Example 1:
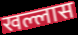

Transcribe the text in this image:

खल्लास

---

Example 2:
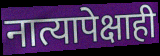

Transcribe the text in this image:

नात्यापेक्षाही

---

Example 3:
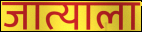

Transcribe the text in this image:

जात्याला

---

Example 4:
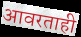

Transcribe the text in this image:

आवरताही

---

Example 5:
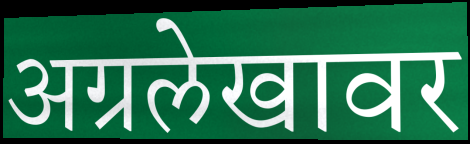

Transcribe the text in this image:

अग्रलेखावर